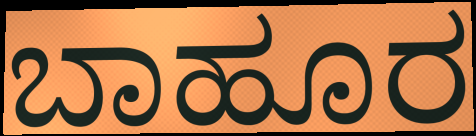
ಬಾಹೂರ